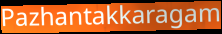
Pazhantakkaragam